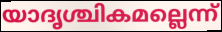
യാദൃശ്ചികമല്ലെന്ന്